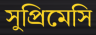
সুপ্রিমেসি